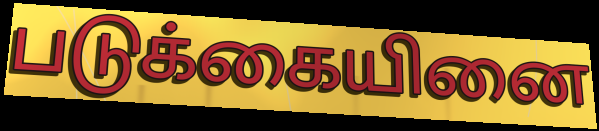
படுக்கையினை